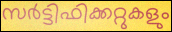
സർട്ടിഫിക്കറ്റുകളും